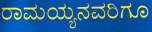
ರಾಮಯ್ಯನವರಿಗೂ